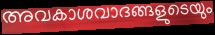
അവകാശവാദങ്ങളുടെയും